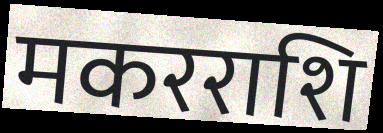
मकरराशि